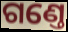
ଗଣ୍ତେ